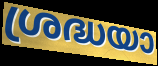
ശ്രദ്ധയാ